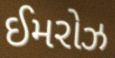
ઈમરોઝ